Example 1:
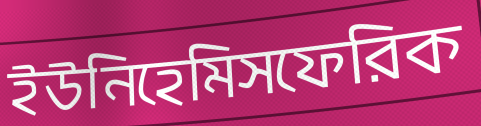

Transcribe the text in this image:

ইউনিহেমিসফেরিক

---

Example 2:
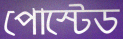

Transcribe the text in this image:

পোস্টেড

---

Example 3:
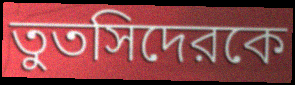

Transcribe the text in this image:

তুতসিদেরকে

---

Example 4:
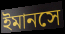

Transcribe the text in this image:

ইমানসে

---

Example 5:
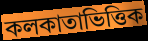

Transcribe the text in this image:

কলকাতাভিত্তিক